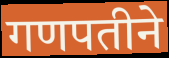
गणपतीने